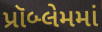
પ્રૉબ્લેમમાં